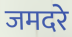
जमदरे